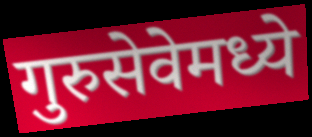
गुरुसेवेमध्ये